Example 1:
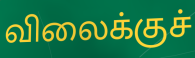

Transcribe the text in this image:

விலைக்குச்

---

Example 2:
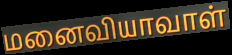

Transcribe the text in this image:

மனைவியாவாள்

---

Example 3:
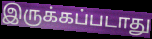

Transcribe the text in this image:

இருக்கப்படாது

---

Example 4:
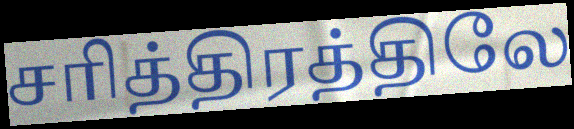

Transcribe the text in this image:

சரித்திரத்திலே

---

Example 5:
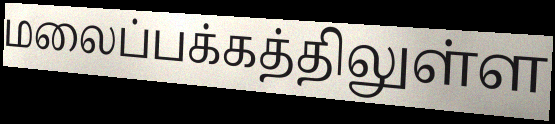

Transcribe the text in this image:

மலைப்பக்கத்திலுள்ள